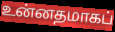
உன்னதமாகப்